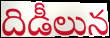
దిడీలున